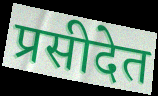
प्रसीदेत